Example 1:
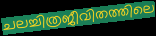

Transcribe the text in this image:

ചലച്ചിത്രജീവിതത്തിലെ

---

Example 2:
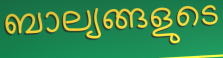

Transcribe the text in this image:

ബാല്യങ്ങളുടെ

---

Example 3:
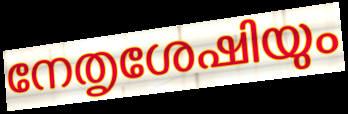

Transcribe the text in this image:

നേതൃശേഷിയും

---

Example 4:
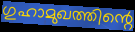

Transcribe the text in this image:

ഗുഹാമുഖത്തിന്റെ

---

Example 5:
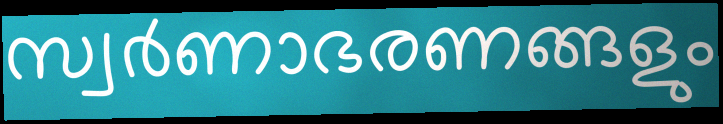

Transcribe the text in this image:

സ്വർണാഭരണങ്ങളും